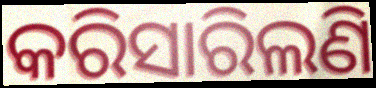
କରିସାରିଲଣି